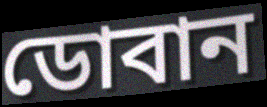
ডোবান